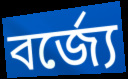
বর্জ্যে